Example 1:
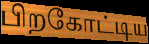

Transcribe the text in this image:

பிறகோட்டிய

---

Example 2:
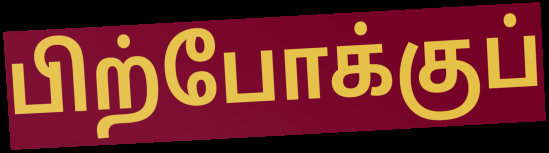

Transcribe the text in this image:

பிற்போக்குப்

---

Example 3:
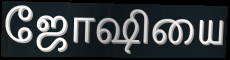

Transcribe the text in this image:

ஜோஷியை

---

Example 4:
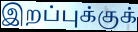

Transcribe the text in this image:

இறப்புக்குக்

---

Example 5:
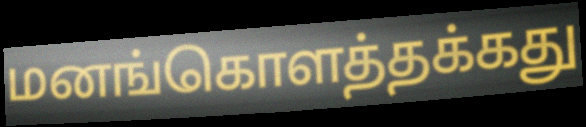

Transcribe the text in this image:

மனங்கொளத்தக்கது